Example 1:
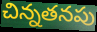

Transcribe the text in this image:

చిన్నతనపు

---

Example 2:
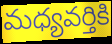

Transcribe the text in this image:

మధ్యవర్తికి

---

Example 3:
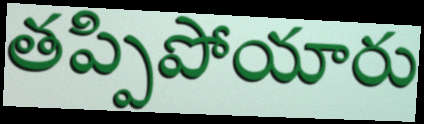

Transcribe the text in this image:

తప్పిపోయారు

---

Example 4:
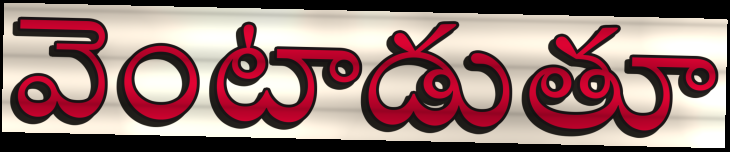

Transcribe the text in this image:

వెంటాడుతూ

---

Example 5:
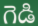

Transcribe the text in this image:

గెడి